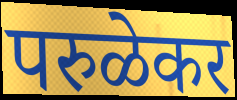
परुळेकर